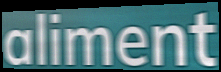
aliment